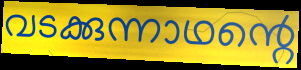
വടക്കുന്നാഥന്റെ